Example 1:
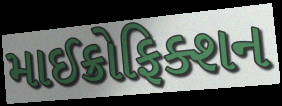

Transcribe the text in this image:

માઈક્રોફિક્શન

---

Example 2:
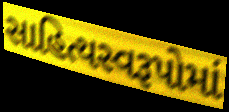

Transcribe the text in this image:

સાહિત્યસ્વરૂપોમાં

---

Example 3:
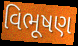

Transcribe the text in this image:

વિભૂષણ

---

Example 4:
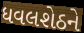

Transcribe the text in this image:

ધવલશેઠને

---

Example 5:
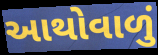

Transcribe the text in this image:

આથોવાળું